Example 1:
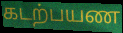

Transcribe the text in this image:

கடற்பயண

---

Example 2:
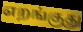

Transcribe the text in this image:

எறங்குது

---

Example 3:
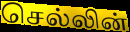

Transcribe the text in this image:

செல்லின்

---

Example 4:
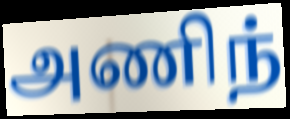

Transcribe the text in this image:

அணிந்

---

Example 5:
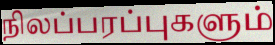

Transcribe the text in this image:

நிலப்பரப்புகளும்